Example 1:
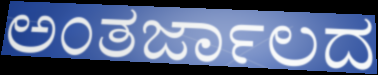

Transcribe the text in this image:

ಅಂತರ್ಜಾಲದ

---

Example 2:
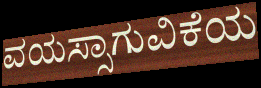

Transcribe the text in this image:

ವಯಸ್ಸಾಗುವಿಕೆಯ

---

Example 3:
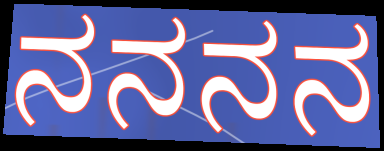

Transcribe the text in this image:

ನನನನ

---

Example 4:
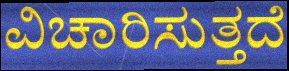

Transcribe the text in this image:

ವಿಚಾರಿಸುತ್ತದೆ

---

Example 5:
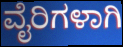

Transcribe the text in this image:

ವೈರಿಗಳಾಗಿ